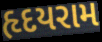
હૃદયરામ